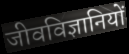
जीवविज्ञानियों